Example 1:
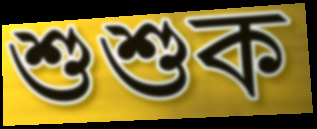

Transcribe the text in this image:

শুশুক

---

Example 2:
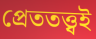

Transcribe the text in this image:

প্রেততত্ত্বই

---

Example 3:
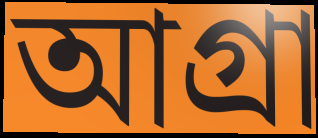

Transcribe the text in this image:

আগ্রা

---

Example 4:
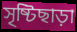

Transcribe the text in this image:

সৃষ্টিছাড়া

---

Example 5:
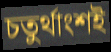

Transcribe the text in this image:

চতুর্থাংশই